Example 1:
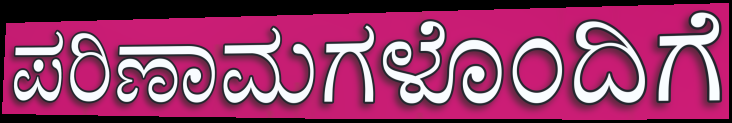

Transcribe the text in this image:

ಪರಿಣಾಮಗಳೊಂದಿಗೆ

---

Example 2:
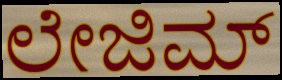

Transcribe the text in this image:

ಲೇಜಿಮ್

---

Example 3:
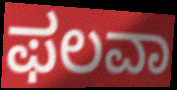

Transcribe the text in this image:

ಫಲವಾ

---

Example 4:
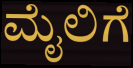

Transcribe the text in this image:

ಮೈಲಿಗೆ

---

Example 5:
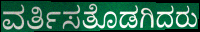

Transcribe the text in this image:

ವರ್ತಿಸತೊಡಗಿದರು